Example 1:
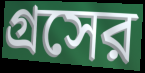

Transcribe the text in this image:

গ্রসের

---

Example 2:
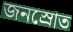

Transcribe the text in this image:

জনস্রোত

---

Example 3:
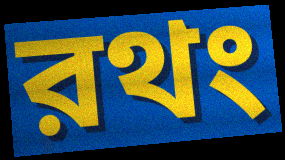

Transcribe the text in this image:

রথং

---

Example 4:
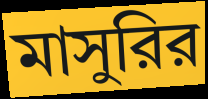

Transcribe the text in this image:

মাসুরির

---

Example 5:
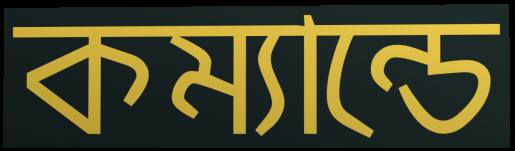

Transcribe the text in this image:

কম্যান্ডে